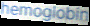
hemoglobin